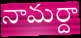
నామర్దా